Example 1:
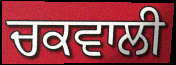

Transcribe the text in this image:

ਚਕਵਾਲੀ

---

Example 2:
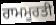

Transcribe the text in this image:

ਰਾਮਮੂਰਤੀ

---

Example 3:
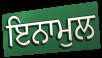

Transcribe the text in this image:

ਇਨਾਮੁਲ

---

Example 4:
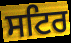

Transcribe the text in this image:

ਸਟਿਰ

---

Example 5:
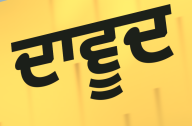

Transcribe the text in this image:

ਦਾਵੂਦ